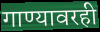
गाण्यावरही